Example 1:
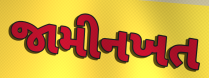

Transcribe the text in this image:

જામીનખત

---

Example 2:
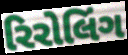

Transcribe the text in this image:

રિરોલિંગ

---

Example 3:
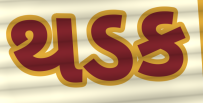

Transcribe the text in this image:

થડક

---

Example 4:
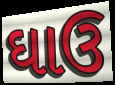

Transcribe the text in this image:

ઘાઉ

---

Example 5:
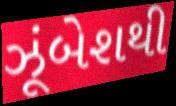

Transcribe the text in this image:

ઝૂંબેશથી